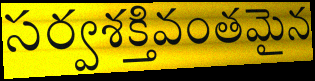
సర్వశక్తివంతమైన